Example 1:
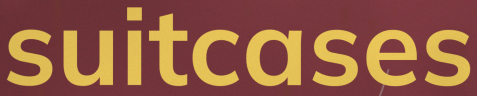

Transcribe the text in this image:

suitcases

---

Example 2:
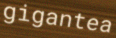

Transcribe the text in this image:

gigantea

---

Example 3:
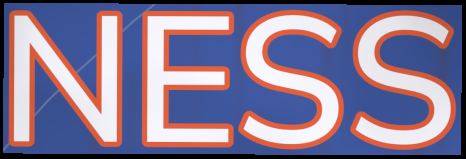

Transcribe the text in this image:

NESS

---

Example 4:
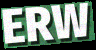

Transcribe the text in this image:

ERW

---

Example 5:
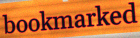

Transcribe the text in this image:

bookmarked